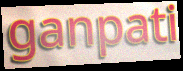
ganpati